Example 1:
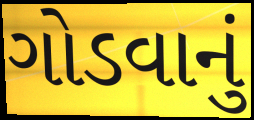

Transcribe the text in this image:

ગોડવાનું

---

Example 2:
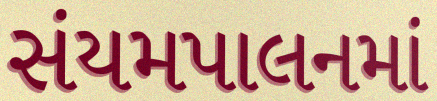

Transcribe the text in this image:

સંયમપાલનમાં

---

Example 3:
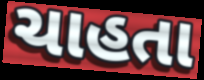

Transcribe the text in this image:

ચાહતા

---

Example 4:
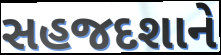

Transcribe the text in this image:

સહજદશાને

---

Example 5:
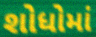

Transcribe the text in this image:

શોધોમાં